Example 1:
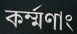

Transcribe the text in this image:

কর্ম্মণাং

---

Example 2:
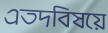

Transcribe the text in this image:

এতদবিষয়ে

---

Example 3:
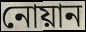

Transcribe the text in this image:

নোয়ান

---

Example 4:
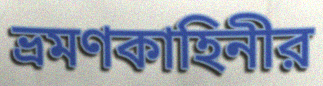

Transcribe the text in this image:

ভ্রমণকাহিনীর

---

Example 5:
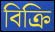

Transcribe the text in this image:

বিক্রি